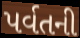
પર્વતની